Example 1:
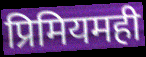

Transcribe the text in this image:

प्रिमियमही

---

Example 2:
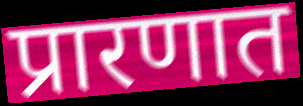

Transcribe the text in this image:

प्रारणात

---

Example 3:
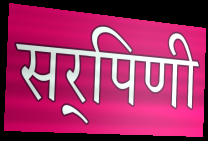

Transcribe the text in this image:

सर्पिणी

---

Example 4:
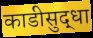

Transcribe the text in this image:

काडीसुद्धा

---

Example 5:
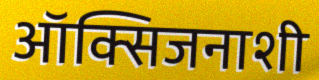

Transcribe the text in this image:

ऑक्सिजनाशी